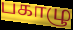
பகாழு